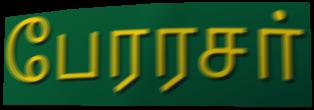
பேரரசர்